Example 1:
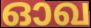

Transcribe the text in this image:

ഓഖ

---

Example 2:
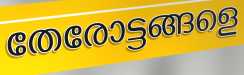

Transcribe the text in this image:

തേരോട്ടങ്ങളെ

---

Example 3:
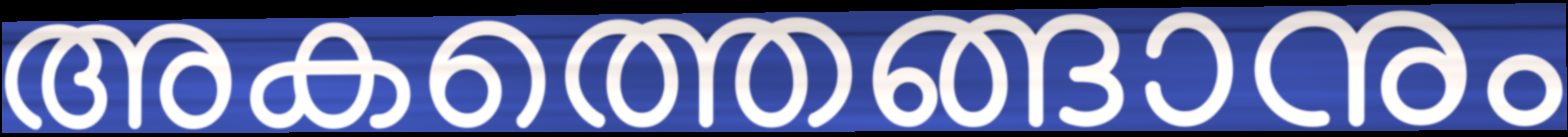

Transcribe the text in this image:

അകത്തെങ്ങാനും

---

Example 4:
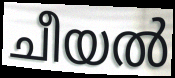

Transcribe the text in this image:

ചീയൽ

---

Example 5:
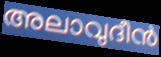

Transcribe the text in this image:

അലാവുദീൻ